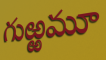
గుఱ్ఱమూ